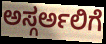
ಅಸ್ಗರ್ಅಲಿಗೆ